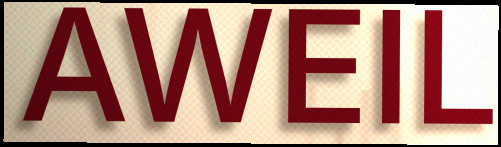
AWEIL